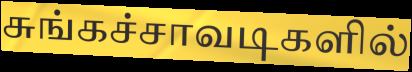
சுங்கச்சாவடிகளில்